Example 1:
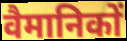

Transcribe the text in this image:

वैमानिकों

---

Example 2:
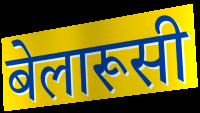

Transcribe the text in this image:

बेलारूसी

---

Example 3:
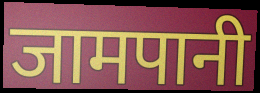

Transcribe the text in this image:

जामपानी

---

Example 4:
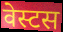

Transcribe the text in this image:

वेस्टस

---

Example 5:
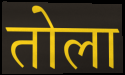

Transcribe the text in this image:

तोला